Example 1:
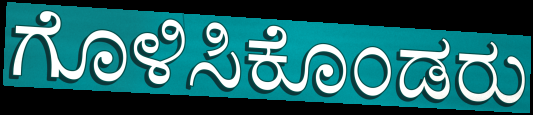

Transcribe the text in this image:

ಗೊಳಿಸಿಕೊಂಡರು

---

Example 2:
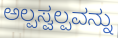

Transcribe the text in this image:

ಅಲ್ಪಸ್ವಲ್ಪವನ್ನು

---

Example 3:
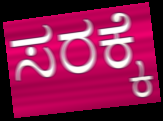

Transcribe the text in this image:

ಸರಕ್ಕೆ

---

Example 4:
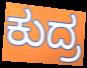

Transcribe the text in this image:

ಕುದ್ರ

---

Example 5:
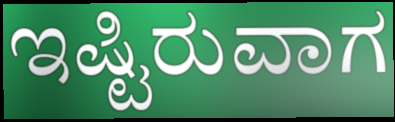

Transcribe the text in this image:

ಇಷ್ಟಿರುವಾಗ